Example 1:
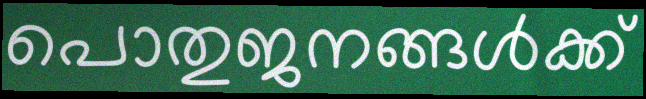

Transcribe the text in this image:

പൊതുജനങ്ങൾക്ക്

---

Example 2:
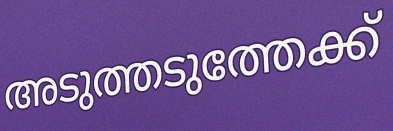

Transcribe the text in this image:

അടുത്തടുത്തേക്ക്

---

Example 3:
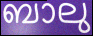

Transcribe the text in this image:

ബാലു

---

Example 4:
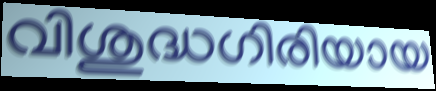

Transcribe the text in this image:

വിശുദ്ധഗിരിയായ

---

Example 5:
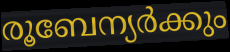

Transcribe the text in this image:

രൂബേന്യർക്കും